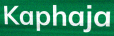
Kaphaja